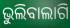
ଭୁଲିବାଲାଗି